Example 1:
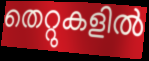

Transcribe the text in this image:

തെറ്റുകളിൽ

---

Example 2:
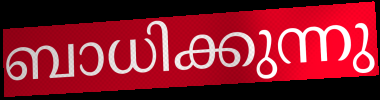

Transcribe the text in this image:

ബാധിക്കുന്നു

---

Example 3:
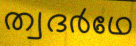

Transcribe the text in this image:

ത്വദർഥേ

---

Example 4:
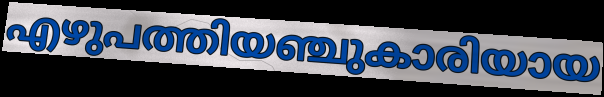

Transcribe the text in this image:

എഴുപത്തിയഞ്ചുകാരിയായ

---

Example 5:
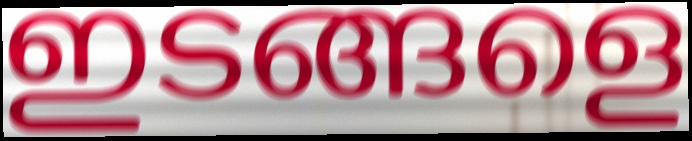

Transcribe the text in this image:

ഇടങ്ങളെ